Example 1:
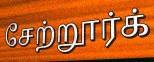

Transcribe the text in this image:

சேற்றூர்க்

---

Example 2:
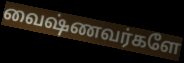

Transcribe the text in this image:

வைஷ்ணவர்களே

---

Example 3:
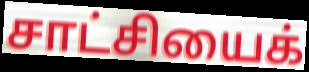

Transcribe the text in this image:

சாட்சியைக்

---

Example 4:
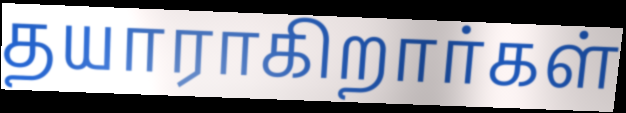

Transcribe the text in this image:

தயாராகிறார்கள்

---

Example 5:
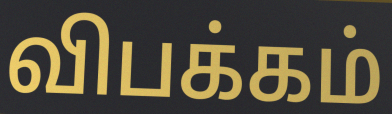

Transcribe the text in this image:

விபக்கம்